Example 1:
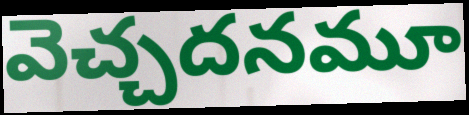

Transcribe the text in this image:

వెచ్చదనమూ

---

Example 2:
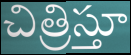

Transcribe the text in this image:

చిత్రిస్తూ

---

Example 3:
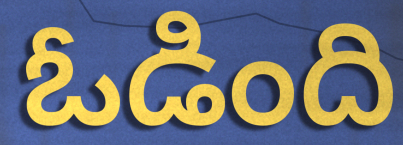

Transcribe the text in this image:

ఓడింది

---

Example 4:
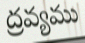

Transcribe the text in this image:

ద్రవ్యము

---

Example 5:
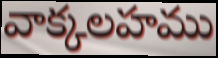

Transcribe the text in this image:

వాక్కలహము